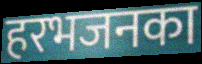
हरभजनका